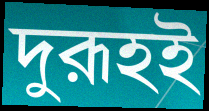
দুরূহই